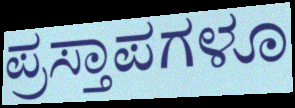
ಪ್ರಸ್ತಾಪಗಳೂ